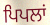
ਪਿਪਲਾਂ